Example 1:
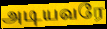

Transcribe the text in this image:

அடியவரே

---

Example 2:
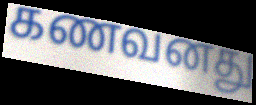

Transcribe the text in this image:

கணவனது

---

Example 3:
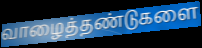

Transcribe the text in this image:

வாழைத்தண்டுகளை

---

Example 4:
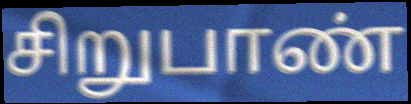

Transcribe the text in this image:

சிறுபாண்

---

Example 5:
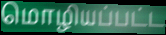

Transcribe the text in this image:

மொழியப்பட்ட